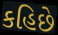
કહિછે